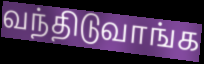
வந்திடுவாங்க